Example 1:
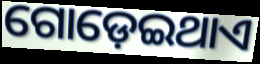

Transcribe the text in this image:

ଗୋଡ଼େଇଥାଏ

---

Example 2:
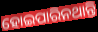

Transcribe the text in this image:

ହୋଇପାରିନଥାନ୍ତି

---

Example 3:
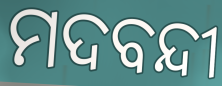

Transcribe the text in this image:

ମଦବନ୍ଦୀ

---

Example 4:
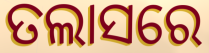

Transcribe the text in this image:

ତଲାସରେ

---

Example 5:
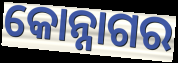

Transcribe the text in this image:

କୋନ୍ନାଗର